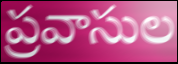
ప్రవాసుల